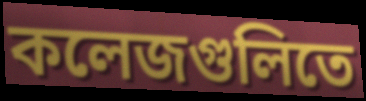
কলেজগুলিতে